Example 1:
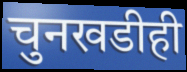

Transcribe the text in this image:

चुनखडीही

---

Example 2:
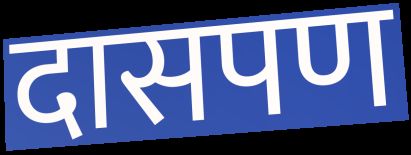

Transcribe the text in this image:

दासपण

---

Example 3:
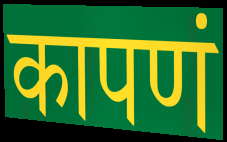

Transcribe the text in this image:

कापणं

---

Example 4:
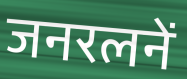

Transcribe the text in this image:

जनरलनें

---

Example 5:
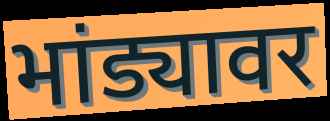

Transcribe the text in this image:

भांड्यावर